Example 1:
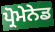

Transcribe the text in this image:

ਪ੍ਰੋਮੇਨੇਡ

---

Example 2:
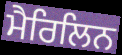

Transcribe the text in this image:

ਮੈਰਿਲਿਨ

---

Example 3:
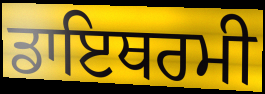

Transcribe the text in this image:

ਡਾਇਥਰਮੀ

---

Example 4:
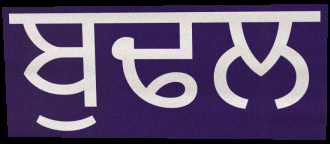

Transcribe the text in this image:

ਬੁਢਲ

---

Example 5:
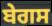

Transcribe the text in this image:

ਬੇਗਸ